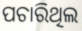
ପଚାରିଥିଲ